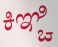
ಕಿಞ್ಚಿ